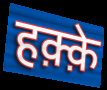
हक़्क़े